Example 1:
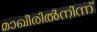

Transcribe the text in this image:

മാഖീരിൽനിന്ന്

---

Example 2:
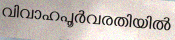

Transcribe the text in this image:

വിവാഹപൂർവരതിയിൽ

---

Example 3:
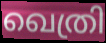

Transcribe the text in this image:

ഖെത്രി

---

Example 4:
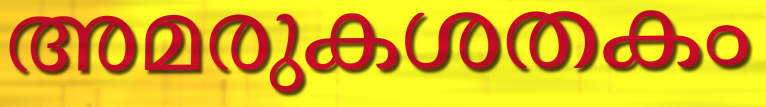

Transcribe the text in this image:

അമരുകശതകം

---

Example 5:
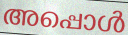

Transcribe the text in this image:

അപ്പൊൾ